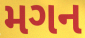
મગન